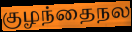
குழந்தைநல